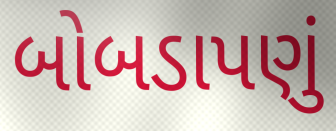
બોબડાપણું